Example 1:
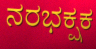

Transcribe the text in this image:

ನರಭಕ್ಷಕ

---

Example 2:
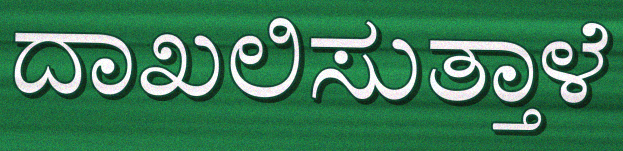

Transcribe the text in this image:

ದಾಖಲಿಸುತ್ತಾಳೆ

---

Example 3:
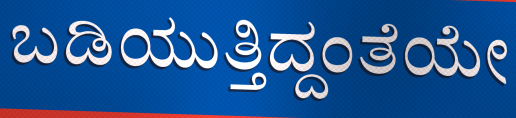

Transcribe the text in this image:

ಬಡಿಯುತ್ತಿದ್ದಂತೆಯೇ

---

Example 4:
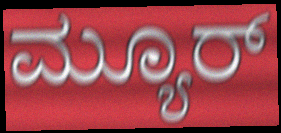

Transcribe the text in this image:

ಮ್ಯೂರ್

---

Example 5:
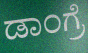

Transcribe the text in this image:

ಡಾಂಗ್ರೆ